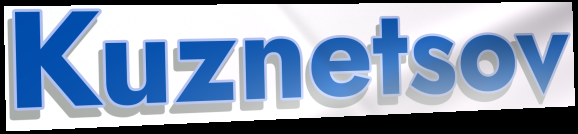
Kuznetsov